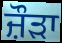
ਜ਼ੌੜਾ